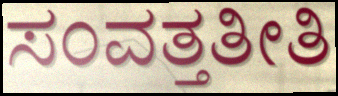
ಸಂವತ್ತತೀತಿ